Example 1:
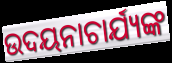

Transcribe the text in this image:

ଉଦୟନାଚାର୍ଯ୍ୟଙ୍କ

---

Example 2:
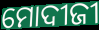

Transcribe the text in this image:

ମୋଦୀଜୀ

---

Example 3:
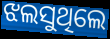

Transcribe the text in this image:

ଝଲସୁଥିଲେ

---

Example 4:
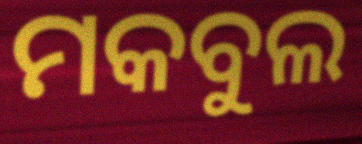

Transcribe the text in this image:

ମକବୁଲ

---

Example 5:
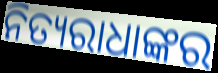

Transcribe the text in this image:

ନିତ୍ୟରାଧାଙ୍କର